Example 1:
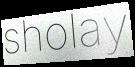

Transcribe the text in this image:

sholay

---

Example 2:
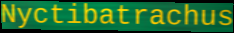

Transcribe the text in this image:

Nyctibatrachus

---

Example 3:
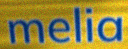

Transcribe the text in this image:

melia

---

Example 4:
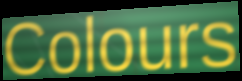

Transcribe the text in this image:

Colours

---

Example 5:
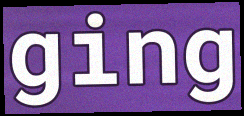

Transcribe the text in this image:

ging